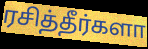
ரசித்தீர்களா